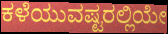
ಕಳೆಯುವಷ್ಟರಲ್ಲಿಯೇ